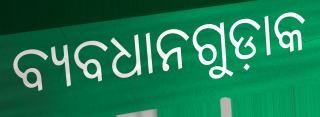
ବ୍ୟବଧାନଗୁଡ଼ାକ